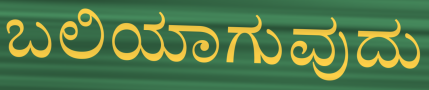
ಬಲಿಯಾಗುವುದು